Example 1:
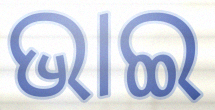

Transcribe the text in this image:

ଭାଇ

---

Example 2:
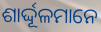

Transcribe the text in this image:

ଶାର୍ଦ୍ଦୂଳମାନେ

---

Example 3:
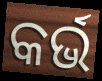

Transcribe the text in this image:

କର୍ଭ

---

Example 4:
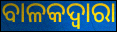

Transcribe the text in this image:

ବାଳକଦ୍ୱାରା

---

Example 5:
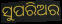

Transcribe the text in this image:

ସୁପରିଅର